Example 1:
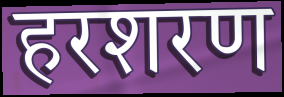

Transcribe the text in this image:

हरशरण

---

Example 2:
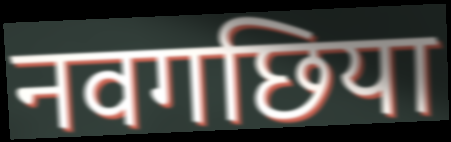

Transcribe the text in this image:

नवगछिया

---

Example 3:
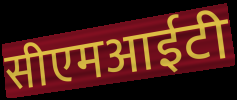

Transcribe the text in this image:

सीएमआईटी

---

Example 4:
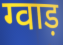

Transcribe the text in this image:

ग्वाड़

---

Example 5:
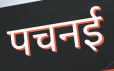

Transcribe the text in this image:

पचनई